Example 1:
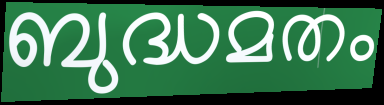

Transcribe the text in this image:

ബുദ്ധമതം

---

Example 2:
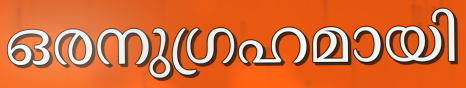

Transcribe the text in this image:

ഒരനുഗ്രഹമായി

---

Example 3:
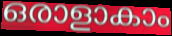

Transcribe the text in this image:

ഒരാളാകാം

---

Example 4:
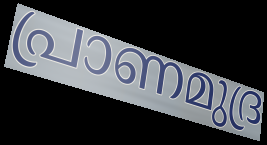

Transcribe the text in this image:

പ്രാണമുദ്ര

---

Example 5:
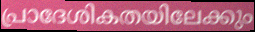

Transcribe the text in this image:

പ്രാദേശികതയിലേക്കും